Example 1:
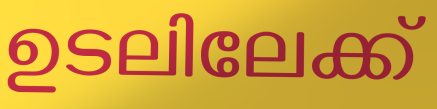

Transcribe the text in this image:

ഉടലിലേക്ക്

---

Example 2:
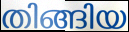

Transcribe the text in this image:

തിങ്ങിയ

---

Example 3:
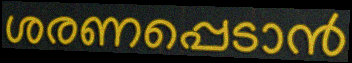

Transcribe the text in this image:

ശരണപ്പെടാൻ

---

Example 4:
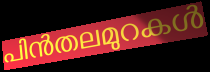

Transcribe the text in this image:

പിൻതലമുറകൾ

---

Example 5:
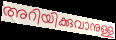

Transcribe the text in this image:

അറിയിക്കുവാനുള്ള